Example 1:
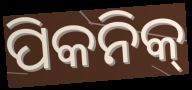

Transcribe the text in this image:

ପିକନିକ୍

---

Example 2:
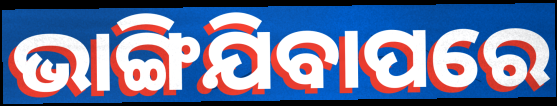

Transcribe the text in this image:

ଭାଙ୍ଗିଯିବାପରେ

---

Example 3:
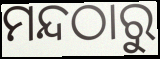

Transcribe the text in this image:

ମନ୍ଦଠାରୁ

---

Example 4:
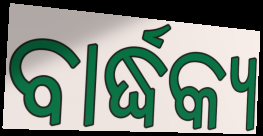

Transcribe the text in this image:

ବାର୍ଦ୍ଧକ୍ୟ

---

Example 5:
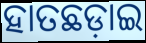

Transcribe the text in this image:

ହାତଛଡ଼ାଇ